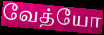
வேத்யோ